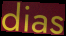
dias